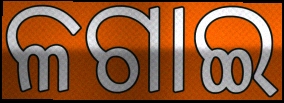
ଳଗାଇ